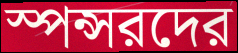
স্পন্সরদের